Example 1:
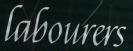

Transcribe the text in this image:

labourers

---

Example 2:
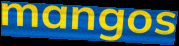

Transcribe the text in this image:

mangos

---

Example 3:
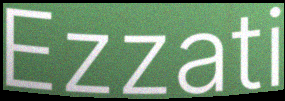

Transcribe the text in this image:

Ezzati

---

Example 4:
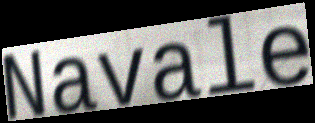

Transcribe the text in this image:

Navale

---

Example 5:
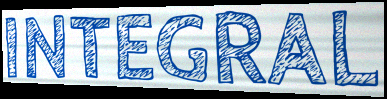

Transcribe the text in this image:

INTEGRAL